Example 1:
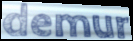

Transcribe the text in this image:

demur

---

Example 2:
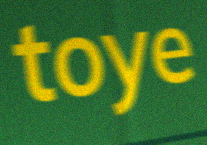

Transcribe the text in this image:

toye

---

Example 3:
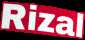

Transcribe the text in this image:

Rizal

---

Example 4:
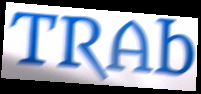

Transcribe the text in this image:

TRAb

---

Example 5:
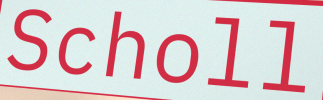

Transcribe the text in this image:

Scholl